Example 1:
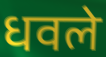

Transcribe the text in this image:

धवले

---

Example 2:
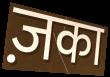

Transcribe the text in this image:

ज़का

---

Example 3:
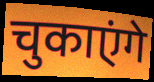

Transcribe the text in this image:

चुकाएंगे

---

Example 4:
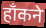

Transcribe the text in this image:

हाँकने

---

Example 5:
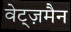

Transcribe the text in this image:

वेट्ज़मैन